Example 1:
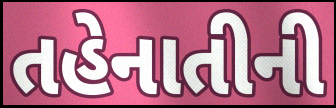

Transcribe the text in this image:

તહેનાતીની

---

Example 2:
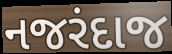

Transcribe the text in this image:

નજરંદાજ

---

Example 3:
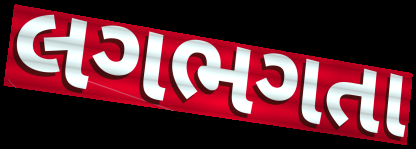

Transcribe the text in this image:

લગભગતા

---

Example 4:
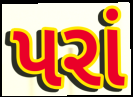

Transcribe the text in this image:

પરાં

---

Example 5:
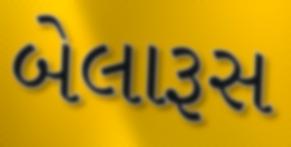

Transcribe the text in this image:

બેલારૂસ